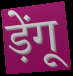
ड़ेंगू